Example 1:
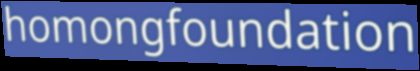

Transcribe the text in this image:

homongfoundation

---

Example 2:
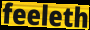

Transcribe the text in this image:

feeleth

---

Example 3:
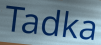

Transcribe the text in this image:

Tadka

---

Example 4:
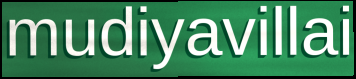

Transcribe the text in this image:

mudiyavillai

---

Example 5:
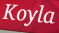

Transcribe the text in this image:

Koyla